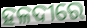
ହଳଦୀରେ